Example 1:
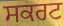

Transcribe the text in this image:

ਸਕਰਟ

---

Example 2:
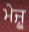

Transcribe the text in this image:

ਮੇਜ਼ੂ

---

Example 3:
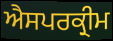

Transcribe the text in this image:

ਐਸਪਰਕ੍ਰੀਮ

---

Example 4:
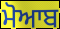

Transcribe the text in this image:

ਮੋਆਬ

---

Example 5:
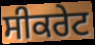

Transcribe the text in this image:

ਸੀਕਰੇਟ